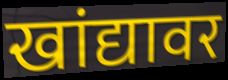
खांद्यावर